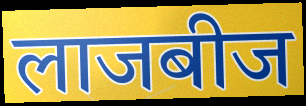
लाजबीज